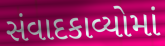
સંવાદકાવ્યોમાં